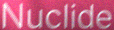
Nuclide